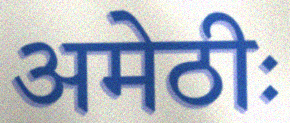
अमेठीः